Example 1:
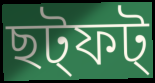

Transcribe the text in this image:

ছট্ফট্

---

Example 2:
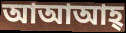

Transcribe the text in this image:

আআআহ্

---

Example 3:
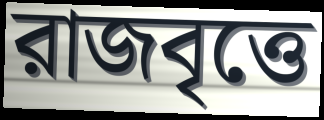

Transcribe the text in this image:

রাজবৃত্তে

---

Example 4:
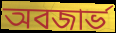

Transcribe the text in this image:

অবজার্ভ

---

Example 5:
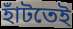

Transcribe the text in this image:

হাঁটতেই